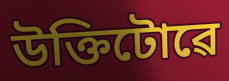
উক্তিটোৱে